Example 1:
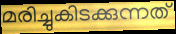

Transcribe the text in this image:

മരിച്ചുകിടക്കുന്നത്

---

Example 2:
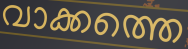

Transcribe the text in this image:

വാക്കത്തെ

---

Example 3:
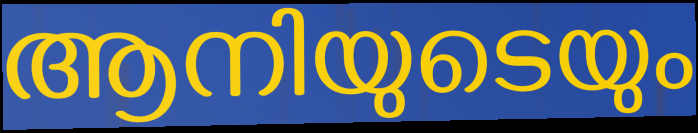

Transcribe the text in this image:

ആനിയുടെയും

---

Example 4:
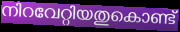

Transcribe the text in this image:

നിറവേറ്റിയതുകൊണ്ട്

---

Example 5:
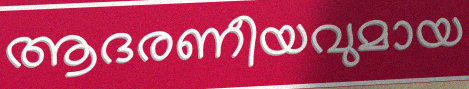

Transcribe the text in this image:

ആദരണീയവുമായ